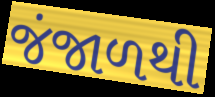
જંજાળથી